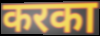
करका